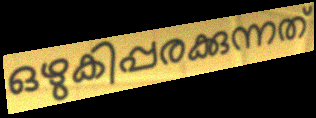
ഒഴുകിപ്പരക്കുന്നത്